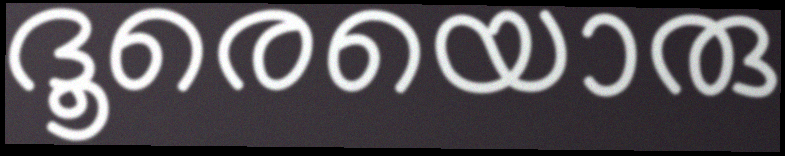
ദൂരെയൊരു